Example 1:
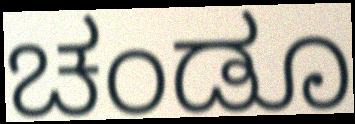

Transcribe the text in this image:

ಚಂಡೂ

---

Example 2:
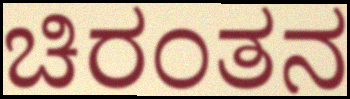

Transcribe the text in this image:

ಚಿರಂತನ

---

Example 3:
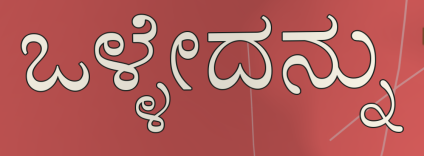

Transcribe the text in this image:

ಒಳ್ಳೇದನ್ನು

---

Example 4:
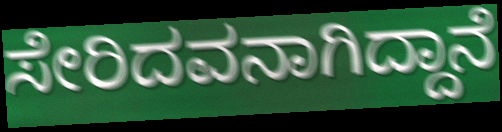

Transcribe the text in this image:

ಸೇರಿದವನಾಗಿದ್ದಾನೆ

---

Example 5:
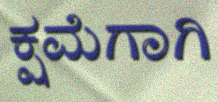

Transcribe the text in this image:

ಕ್ಷಮೆಗಾಗಿ